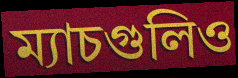
ম্যাচগুলিও